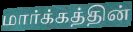
மார்க்கத்தின்